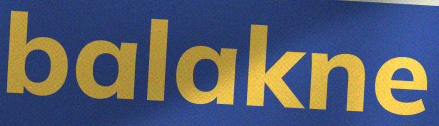
balakne